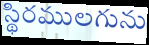
స్థిరములగును